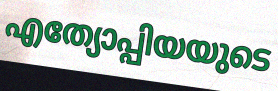
എത്യോപ്പിയയുടെ